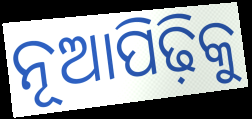
ନୂଆପିଢ଼ିକୁ